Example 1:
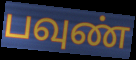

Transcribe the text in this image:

பவுண்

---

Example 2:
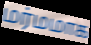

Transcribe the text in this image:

மர்மமாக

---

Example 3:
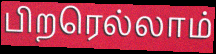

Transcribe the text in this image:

பிறரெல்லாம்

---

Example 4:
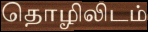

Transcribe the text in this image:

தொழிலிடம்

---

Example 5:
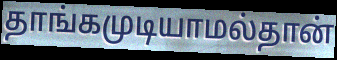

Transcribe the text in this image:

தாங்கமுடியாமல்தான்